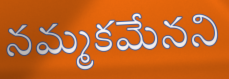
నమ్మకమేనని